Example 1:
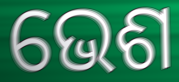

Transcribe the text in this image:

ଭେଶ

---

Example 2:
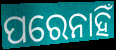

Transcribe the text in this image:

ପରେନାହିଁ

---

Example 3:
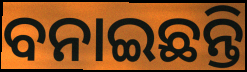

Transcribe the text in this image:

ବନାଇଛନ୍ତି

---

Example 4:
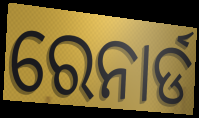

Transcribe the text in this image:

ରେନାର୍ଡ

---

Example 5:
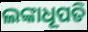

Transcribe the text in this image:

ଲଙ୍କାଧୂପତି